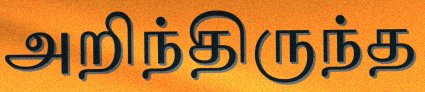
அறிந்திருந்த